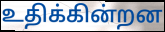
உதிக்கின்றன